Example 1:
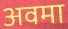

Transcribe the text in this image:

अवमा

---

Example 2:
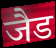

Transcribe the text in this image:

जैड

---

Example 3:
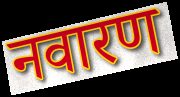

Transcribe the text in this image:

नवारण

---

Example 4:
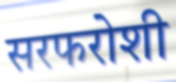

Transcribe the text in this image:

सरफरोशी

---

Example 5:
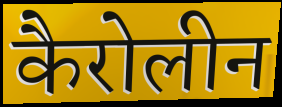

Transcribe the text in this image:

कैरोलीन